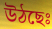
উঠছেঃ